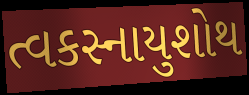
ત્વકસ્નાયુશોથ